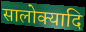
सालोक्यादि